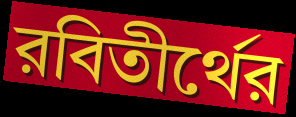
রবিতীর্থের